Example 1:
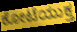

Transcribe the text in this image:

ಕೋಟೆಯುಕ್ತ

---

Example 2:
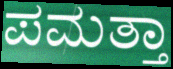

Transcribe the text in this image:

ಪಮತ್ತಾ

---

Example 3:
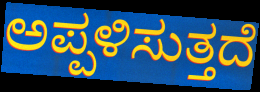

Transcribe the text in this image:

ಅಪ್ಪಳಿಸುತ್ತದೆ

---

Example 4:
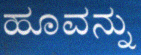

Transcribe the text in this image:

ಹೂವನ್ನು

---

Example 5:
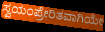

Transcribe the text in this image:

ಸ್ವಯಂಪ್ರೇರಿತವಾಗಿಯೇ